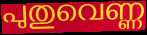
പുതുവെണ്ണ